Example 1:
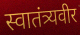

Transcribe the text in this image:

स्वातंत्र्यवीर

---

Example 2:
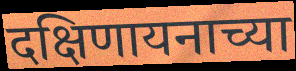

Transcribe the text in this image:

दक्षिणायनाच्या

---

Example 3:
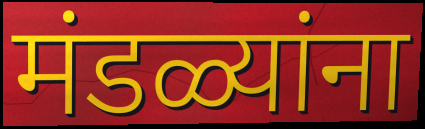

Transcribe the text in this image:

मंडळ्यांना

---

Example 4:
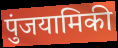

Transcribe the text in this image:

पुंजयामिकी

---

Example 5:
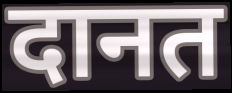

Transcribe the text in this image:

दानत